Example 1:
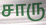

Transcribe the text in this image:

சாரு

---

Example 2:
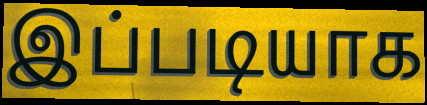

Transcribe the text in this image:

இப்படியாக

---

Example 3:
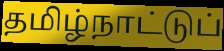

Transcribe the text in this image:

தமிழ்நாட்டுப்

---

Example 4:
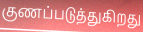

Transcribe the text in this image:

குணப்படுத்துகிறது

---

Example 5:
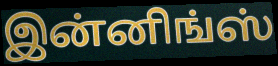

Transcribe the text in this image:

இன்னிங்ஸ்